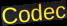
Codec